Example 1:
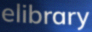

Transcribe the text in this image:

elibrary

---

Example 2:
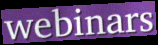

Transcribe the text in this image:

webinars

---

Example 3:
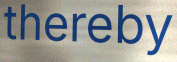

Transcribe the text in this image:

thereby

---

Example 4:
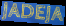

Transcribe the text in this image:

JADEJA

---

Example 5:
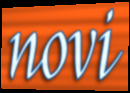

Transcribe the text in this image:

novi